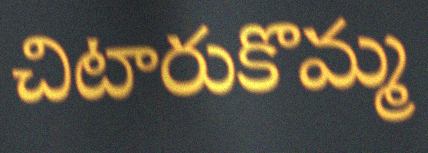
చిటారుకొమ్మ